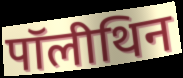
पॉलीथिन